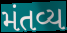
મંતવ્ય